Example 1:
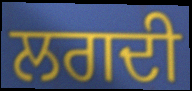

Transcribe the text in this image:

ਲਗਦੀ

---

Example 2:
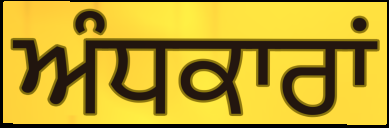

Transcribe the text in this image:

ਅੰਧਕਾਰਾਂ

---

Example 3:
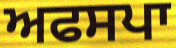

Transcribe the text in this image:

ਅਫਸਪਾ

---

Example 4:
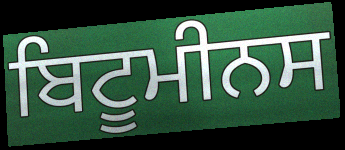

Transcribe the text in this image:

ਬਿਟੂਮੀਨਸ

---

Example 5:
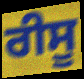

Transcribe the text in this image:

ਰੀਸੂ